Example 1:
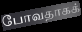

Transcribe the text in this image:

போவதாகக்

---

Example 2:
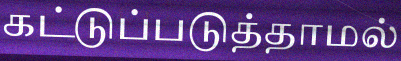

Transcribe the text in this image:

கட்டுப்படுத்தாமல்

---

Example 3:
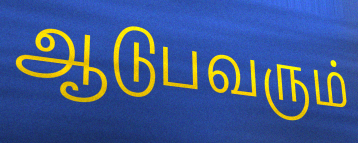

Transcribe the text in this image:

ஆடுபவரும்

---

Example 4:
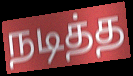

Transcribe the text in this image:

நடித்த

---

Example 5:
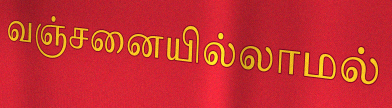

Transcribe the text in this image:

வஞ்சனையில்லாமல்